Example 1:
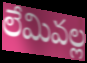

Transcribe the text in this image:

లేమివల్ల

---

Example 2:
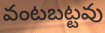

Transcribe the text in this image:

వంటబట్టవు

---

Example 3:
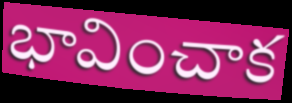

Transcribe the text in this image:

భావించాక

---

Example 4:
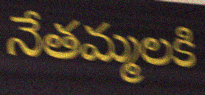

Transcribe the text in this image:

నేతమ్మలకి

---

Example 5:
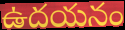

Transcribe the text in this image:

ఉదయనం